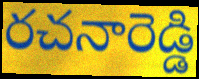
రచనారెడ్డి